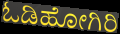
ಓಡಿಹೋಗಿರಿ